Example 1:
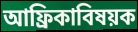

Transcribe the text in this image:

আফ্রিকাবিষয়ক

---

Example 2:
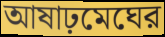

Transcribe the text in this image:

আষাঢ়মেঘের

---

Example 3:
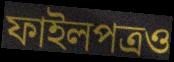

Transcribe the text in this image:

ফাইলপত্রও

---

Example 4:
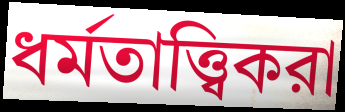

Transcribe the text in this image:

ধর্মতাত্ত্বিকরা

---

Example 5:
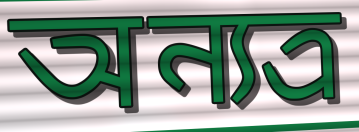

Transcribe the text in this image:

অন্যত্র